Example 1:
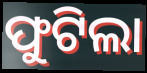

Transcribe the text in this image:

ଫୁଟିଲା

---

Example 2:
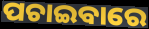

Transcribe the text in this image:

ପଚାଇବାରେ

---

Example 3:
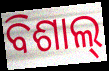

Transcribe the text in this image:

ବିଶାଲ୍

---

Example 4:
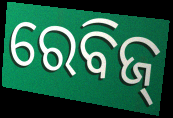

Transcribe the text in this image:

ରେବିଜ୍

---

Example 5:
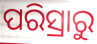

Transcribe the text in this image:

ପରିସ୍ରାରୁ